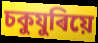
চকুযুৰিয়ে